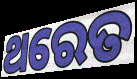
ଥରେତ